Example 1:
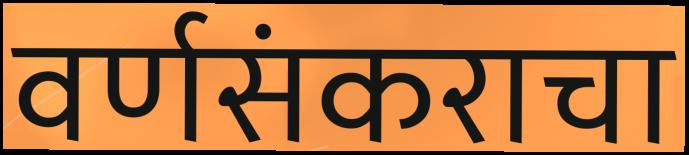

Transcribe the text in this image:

वर्णसंकराचा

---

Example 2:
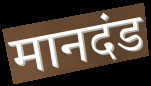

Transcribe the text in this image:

मानदंड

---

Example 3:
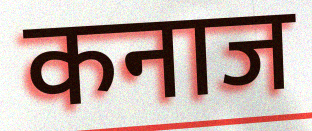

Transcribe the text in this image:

कनाज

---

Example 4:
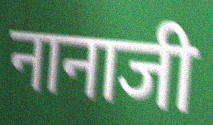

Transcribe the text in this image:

नानाजी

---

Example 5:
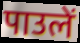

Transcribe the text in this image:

पाउलें